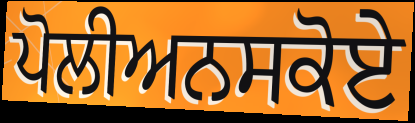
ਪੋਲੀਅਨਸਕੋਏ